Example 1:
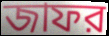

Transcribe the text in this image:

জাফর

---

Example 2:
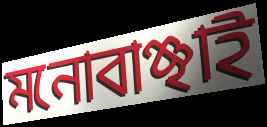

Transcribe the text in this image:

মনোবাঞ্ছাই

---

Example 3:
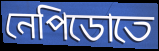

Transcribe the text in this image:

নেপিডোতে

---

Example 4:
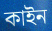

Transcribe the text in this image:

কাইন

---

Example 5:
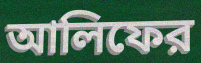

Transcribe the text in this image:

আলিফের